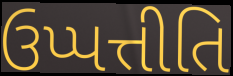
ઉપ્પત્તીતિ